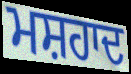
ਮਸ਼ਹਾਦ